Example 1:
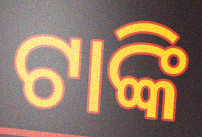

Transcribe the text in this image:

ଟାଙ୍କି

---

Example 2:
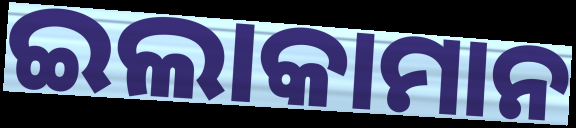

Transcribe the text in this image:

ଇଲାକାମାନ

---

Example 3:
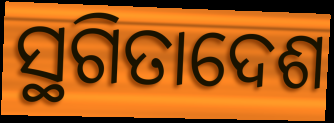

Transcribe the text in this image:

ସ୍ଥଗିତାଦେଶ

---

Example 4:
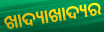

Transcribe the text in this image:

ଖାଦ୍ୟାଖାଦ୍ୟର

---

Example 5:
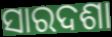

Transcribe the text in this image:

ସାରଦଶା